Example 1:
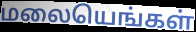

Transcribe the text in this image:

மலையெங்கள்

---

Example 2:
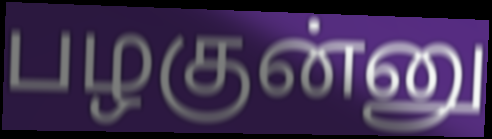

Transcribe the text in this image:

பழகுன்னு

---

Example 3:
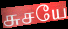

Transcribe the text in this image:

சுசயே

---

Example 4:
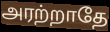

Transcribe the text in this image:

அரற்றாதே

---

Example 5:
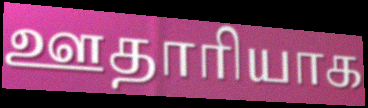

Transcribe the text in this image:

ஊதாரியாக